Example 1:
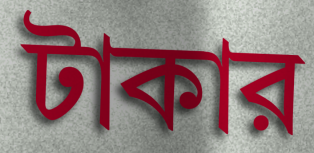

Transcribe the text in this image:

টাকার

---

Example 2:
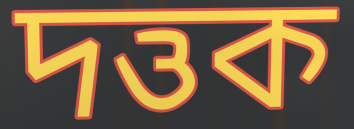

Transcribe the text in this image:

দত্তক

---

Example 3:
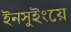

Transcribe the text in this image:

ইনসুইংয়ে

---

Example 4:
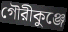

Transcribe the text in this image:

গৌরীকুঞ্জে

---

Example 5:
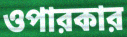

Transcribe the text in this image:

ওপারকার